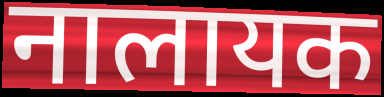
नालायक